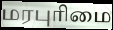
மரபுரிமை